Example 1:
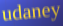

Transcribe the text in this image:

udaney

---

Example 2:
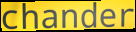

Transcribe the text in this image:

chander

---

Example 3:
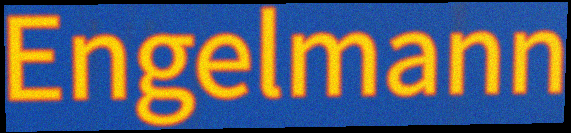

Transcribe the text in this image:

Engelmann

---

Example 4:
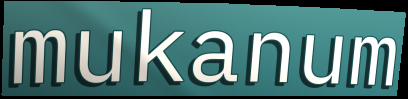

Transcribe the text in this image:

mukanum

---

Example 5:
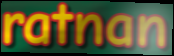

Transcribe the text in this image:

ratnan